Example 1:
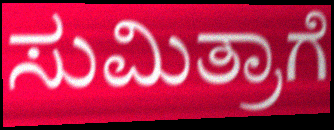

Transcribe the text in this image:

ಸುಮಿತ್ರಾಗೆ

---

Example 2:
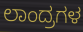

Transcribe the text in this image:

ಲಾಂದ್ರಗಳ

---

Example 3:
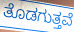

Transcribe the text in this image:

ತೊಡಗುತ್ತವೆ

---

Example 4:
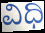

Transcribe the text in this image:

ವಿಧಿ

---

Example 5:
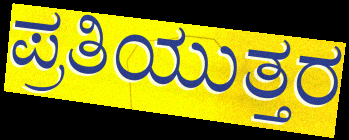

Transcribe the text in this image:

ಪ್ರತಿಯುತ್ತರ